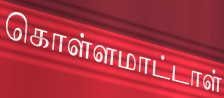
கொள்ளமாட்டாள்